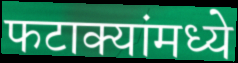
फटाक्यांमध्ये